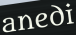
anedi